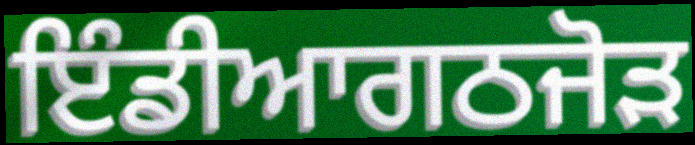
ਇੰਡੀਆਗਠਜੋੜ